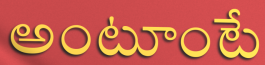
అంటూంటే